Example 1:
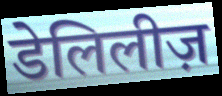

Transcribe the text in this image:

डेलिलीज़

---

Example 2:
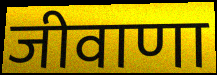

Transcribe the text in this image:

जीवाणा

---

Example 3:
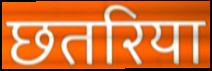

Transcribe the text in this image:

छतरिया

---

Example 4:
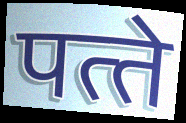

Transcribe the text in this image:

पत्‍ते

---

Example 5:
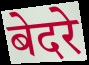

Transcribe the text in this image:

बेदरे